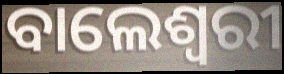
ବାଲେଶ୍ଵରୀ